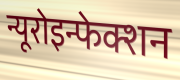
न्यूरोइन्फेक्शन